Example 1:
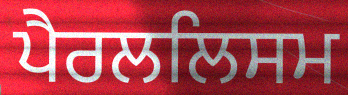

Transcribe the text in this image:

ਪੈਰਲਲਿਸਮ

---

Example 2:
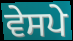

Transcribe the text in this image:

ਵੇਸਪੇ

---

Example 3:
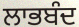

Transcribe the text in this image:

ਲਾਭਬੰਦ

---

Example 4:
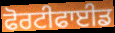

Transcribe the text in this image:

ਫੋਰਟੀਫਾਈਡ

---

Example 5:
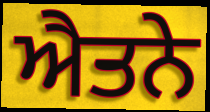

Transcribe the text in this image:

ਐਤਨੇ